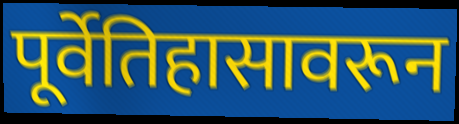
पूर्वेतिहासावरून